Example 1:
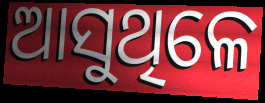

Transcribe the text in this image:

ଆସୁଥିଳେ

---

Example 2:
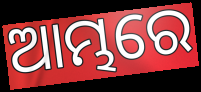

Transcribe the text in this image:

ଆମ୍ଭରେ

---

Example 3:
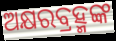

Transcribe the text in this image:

ଅକ୍ଷରବ୍ରହ୍ମଙ୍କ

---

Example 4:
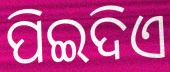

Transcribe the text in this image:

ପିଇଦିଏ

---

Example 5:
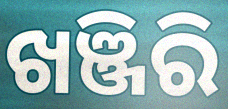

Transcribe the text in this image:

ଖଞ୍ଜିରି